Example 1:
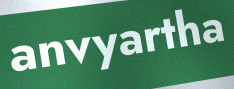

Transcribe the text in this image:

anvyartha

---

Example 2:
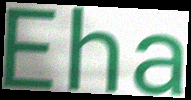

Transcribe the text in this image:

Eha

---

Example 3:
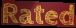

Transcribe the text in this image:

Rated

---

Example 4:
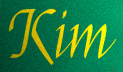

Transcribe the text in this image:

Kim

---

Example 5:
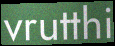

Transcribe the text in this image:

vrutthi